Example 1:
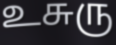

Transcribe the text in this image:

உசுரு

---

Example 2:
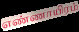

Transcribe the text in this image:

எண்ணாயிரம்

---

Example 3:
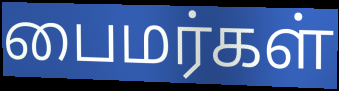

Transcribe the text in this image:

பைமர்கள்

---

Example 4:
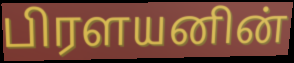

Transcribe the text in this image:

பிரளயனின்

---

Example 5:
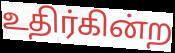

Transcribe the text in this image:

உதிர்கின்ற